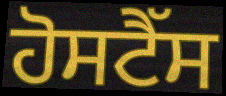
ਹੋਸਟੈੱਸ